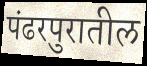
पंढरपुरातील